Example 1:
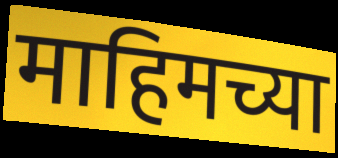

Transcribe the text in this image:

माहिमच्या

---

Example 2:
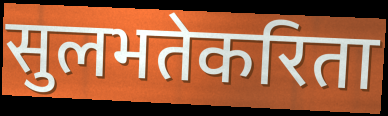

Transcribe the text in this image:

सुलभतेकरिता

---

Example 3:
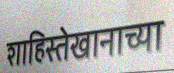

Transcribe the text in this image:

शाहिस्तेखानाच्या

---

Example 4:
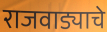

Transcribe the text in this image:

राजवाड्याचे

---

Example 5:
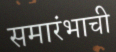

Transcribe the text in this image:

समारंभाची